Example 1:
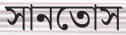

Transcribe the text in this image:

সানতোস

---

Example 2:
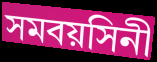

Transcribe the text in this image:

সমবয়সিনী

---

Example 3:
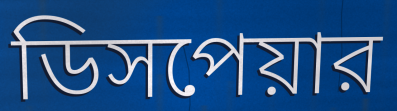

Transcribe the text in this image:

ডিসপেয়ার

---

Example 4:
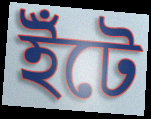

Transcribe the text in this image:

ইঁটে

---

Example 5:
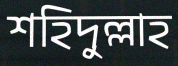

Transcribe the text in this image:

শহিদুল্লাহ